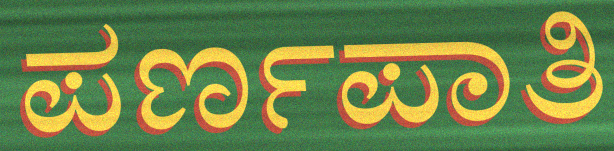
ಪರ್ಣಪಾತಿ